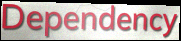
Dependency